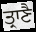
ਤ੍ਰਾਣੈ